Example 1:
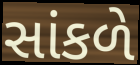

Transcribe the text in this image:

સાંકળે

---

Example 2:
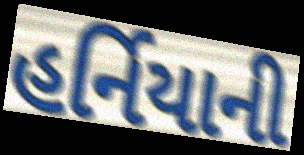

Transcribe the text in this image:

હર્નિયાની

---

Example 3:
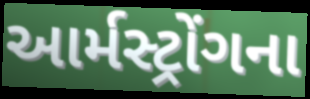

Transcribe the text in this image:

આર્મસ્ટ્રોંગના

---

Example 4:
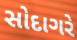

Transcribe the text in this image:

સોદાગરે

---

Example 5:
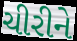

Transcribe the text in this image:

ચીરીને